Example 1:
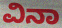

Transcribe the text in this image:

ವಿನಾ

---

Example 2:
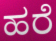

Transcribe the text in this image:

ಹರೆ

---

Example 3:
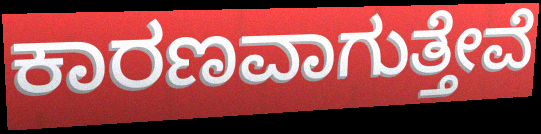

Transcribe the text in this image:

ಕಾರಣವಾಗುತ್ತೇವೆ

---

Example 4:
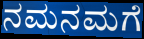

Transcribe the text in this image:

ನಮನಮಗೆ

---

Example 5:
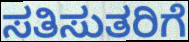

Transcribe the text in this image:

ಸತಿಸುತರಿಗೆ